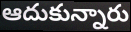
ఆదుకున్నారు